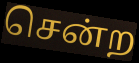
சென்ற